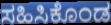
ಸಹಿಸಿಕೊಂಡ